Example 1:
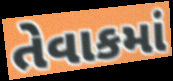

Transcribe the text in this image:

તેવાકમાં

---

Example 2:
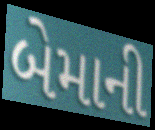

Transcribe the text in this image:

બેમાની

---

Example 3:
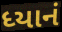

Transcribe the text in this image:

ધ્યાનં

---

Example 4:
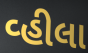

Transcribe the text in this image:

વ્હીલા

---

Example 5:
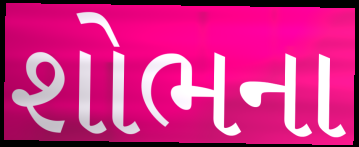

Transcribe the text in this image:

શોભના